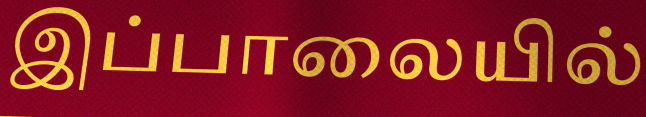
இப்பாலையில்